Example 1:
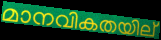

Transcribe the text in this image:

മാനവികതയില്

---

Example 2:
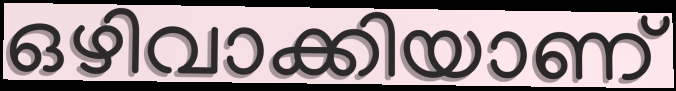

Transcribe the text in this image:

ഒഴിവാക്കിയാണ്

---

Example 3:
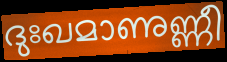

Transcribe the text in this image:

ദുഃഖമാണുണ്ണീ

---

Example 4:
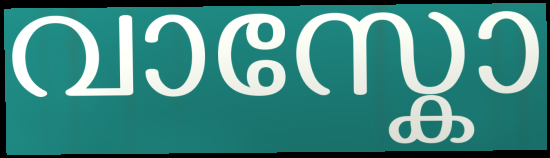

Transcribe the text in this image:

വാസ്കോ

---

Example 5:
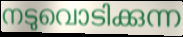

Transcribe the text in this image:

നടുവൊടിക്കുന്ന